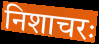
निशाचरः